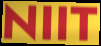
NIIT